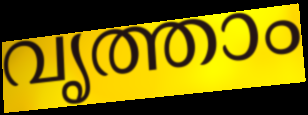
വൃത്താം